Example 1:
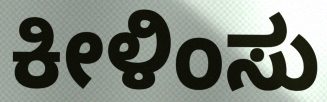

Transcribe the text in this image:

ಕೀಳಿಂಸು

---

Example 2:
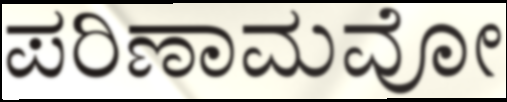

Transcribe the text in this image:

ಪರಿಣಾಮವೋ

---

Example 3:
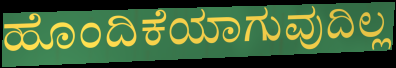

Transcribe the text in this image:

ಹೊಂದಿಕೆಯಾಗುವುದಿಲ್ಲ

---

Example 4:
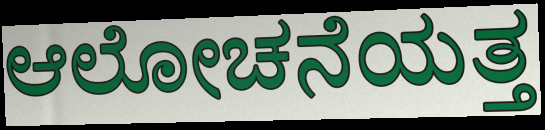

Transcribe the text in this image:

ಆಲೋಚನೆಯತ್ತ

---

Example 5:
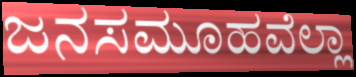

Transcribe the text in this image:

ಜನಸಮೂಹವೆಲ್ಲಾ